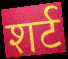
शर्ट